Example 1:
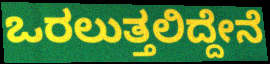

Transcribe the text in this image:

ಒರಲುತ್ತಲಿದ್ದೇನೆ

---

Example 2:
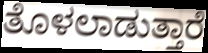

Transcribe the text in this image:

ತೊಳಲಾಡುತ್ತಾರೆ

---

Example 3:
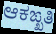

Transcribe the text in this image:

ಆಕಙ್ಖತಿ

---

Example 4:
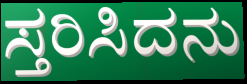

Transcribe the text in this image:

ಸ್ತರಿಸಿದನು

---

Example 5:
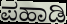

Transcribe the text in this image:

ಪಹಾಡಿ